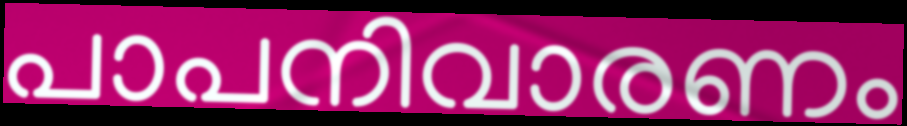
പാപനിവാരണം